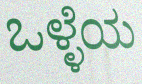
ಒಳ್ಳೆಯ